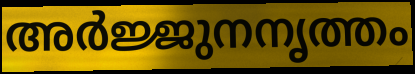
അർജ്ജുനനൃത്തം